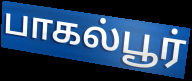
பாகல்பூர்